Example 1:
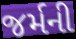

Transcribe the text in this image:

જર્મની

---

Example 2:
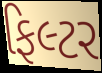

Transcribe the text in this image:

ફિલ્ટર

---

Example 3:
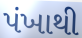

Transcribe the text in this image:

પંખાથી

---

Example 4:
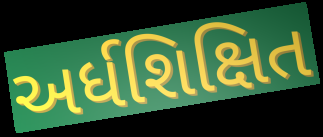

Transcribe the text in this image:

અર્ધશિક્ષિત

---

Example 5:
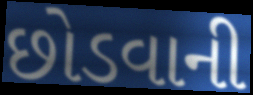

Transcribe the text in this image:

છોડવાની